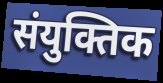
संयुक्तिक